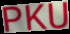
PKU